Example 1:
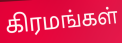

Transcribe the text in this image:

கிரமங்கள்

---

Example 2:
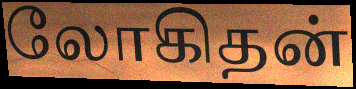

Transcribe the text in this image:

லோகிதன்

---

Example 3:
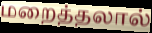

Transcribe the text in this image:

மறைத்தலால்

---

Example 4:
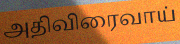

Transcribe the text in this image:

அதிவிரைவாய்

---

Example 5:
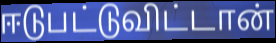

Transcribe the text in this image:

ஈடுபட்டுவிட்டான்